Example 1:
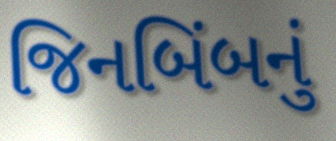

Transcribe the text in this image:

જિનબિંબનું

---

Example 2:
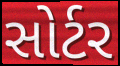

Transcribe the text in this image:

સોર્ટર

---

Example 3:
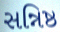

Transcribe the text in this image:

સન્નિષ્ઠ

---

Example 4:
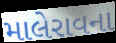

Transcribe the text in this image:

માલેરાવના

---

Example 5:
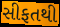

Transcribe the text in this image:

સીફતથી